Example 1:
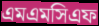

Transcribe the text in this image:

এমএমসিএফ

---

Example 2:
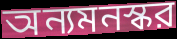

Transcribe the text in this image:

অন্যমনস্কর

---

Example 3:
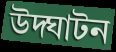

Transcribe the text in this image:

উদ্ঘাটন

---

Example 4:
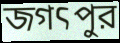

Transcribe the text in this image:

জগৎপুর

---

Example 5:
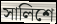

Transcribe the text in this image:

সালিশে